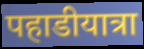
पहाडीयात्रा